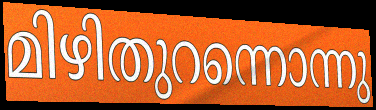
മിഴിതുറന്നൊന്നു